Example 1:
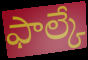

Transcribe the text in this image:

ఫాల్కే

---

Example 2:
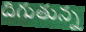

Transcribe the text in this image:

దిగుతున్న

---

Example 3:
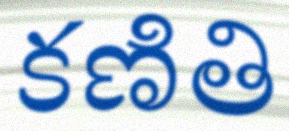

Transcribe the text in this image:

కణితి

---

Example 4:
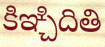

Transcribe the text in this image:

కిఞ్చిదితి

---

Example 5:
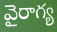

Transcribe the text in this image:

వైరాగ్య